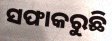
ସଫାକରୁଛି